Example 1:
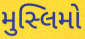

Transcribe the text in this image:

મુસ્લિમો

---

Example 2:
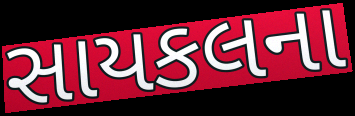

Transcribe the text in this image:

સાયકલના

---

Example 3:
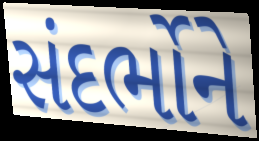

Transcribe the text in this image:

સંદર્ભોને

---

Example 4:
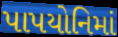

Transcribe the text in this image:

પાપયોનિમાં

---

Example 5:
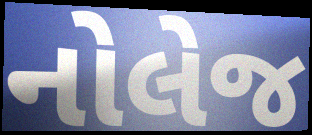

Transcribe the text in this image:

નોલેજ